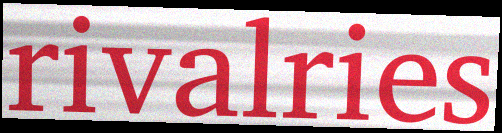
rivalries